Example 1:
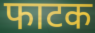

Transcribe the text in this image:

फाटक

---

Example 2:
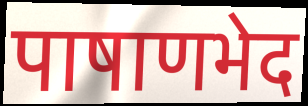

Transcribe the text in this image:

पाषाणभेद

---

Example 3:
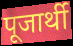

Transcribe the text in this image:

पूजार्थी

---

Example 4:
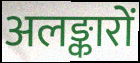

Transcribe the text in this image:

अलङ्कारों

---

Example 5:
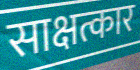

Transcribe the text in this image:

साक्षत्कार